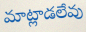
మాట్లాడలేవు